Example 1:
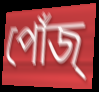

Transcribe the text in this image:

পোঁজ্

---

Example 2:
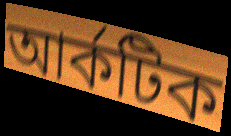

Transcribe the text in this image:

আর্কটিক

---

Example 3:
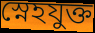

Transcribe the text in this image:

স্নেহযুক্ত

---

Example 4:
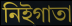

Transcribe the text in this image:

নিইগাতা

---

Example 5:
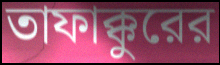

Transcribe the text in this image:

তাফাক্কুরের